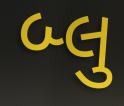
બ્લુ